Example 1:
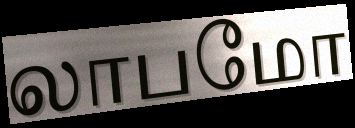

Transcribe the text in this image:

லாபமோ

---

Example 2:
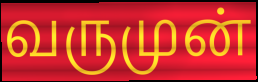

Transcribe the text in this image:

வருமுன்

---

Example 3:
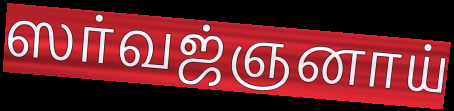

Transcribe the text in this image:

ஸர்வஜ்ஞனாய்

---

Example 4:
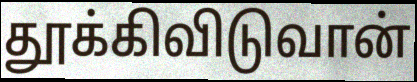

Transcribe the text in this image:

தூக்கிவிடுவான்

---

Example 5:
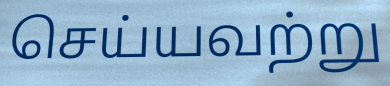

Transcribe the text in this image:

செய்யவற்று